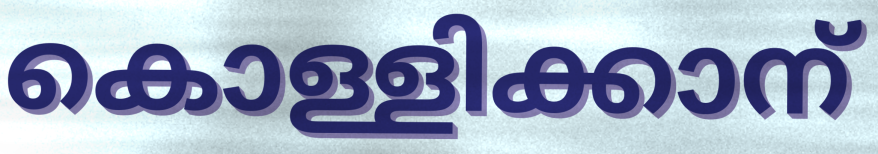
കൊള്ളിക്കാന്